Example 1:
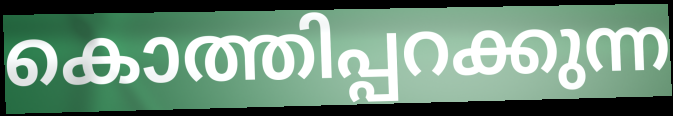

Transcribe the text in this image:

കൊത്തിപ്പറക്കുന്ന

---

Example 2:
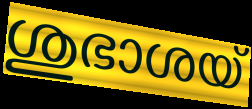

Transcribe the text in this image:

ശുഭാശയ്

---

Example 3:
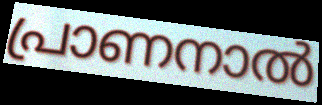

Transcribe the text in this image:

പ്രാണനാൽ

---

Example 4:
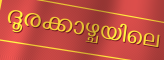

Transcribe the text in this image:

ദൂരക്കാഴ്ചയിലെ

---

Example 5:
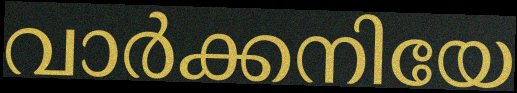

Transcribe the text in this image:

വാർക്കനിയേ